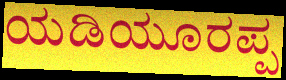
ಯಡಿಯೂರಪ್ಪ